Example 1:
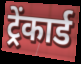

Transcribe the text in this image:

ट्रेंकार्ड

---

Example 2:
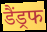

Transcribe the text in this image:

डैंड्रफ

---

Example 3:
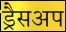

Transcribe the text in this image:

ड्रैसअप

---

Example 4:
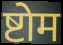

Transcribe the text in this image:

ष्टोम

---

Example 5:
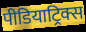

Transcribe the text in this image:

पीडियाट्रिक्स